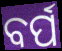
ବର୍ପ